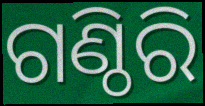
ଗଣ୍ଠିରି